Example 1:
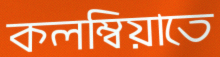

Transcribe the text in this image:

কলম্বিয়াতে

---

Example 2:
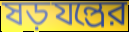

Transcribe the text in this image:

ষড়যন্ত্রের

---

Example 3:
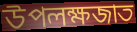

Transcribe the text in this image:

উপলক্ষজাত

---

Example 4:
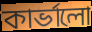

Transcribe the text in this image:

কার্ভালো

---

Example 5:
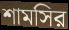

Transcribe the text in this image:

শামসির